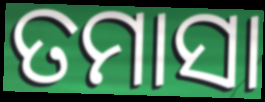
ତମାସା